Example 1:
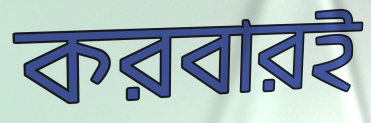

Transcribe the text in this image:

করবারই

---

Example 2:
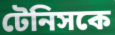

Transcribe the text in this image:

টেনিসকে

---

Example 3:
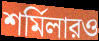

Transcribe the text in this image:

শর্মিলারও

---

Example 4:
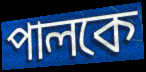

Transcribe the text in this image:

পালকে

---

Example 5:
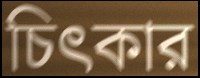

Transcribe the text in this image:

চিৎকার